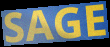
SAGE